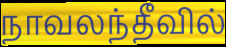
நாவலந்தீவில்